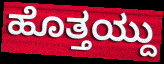
ಹೊತ್ತಯ್ದು